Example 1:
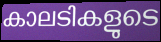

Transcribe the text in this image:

കാലടികളുടെ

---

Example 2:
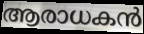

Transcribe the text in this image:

ആരാധകൻ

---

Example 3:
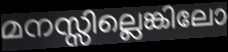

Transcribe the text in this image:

മനസ്സില്ലെങ്കിലോ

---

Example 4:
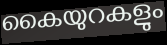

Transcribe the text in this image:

കൈയുറകളും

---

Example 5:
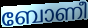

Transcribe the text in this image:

ബോണീ